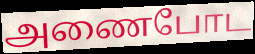
அணைபோட